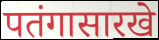
पतंगासारखे